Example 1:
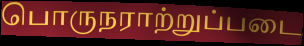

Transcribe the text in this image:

பொருநராற்றுப்படை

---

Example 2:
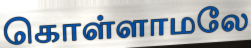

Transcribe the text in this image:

கொள்ளாமலே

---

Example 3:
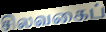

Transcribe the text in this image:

சிலவகைப்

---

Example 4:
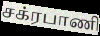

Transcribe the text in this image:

சக்ரபாணி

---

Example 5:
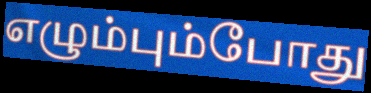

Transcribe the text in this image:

எழும்பும்போது